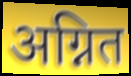
अग्नित